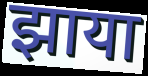
झाया